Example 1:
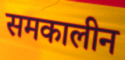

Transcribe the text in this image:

समकालीन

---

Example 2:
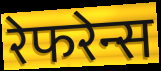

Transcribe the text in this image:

रेफरेन्स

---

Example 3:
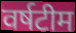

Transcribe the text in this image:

वर्षटीम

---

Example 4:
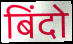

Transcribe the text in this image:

बिंदो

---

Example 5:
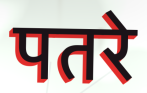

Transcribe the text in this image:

पतरे